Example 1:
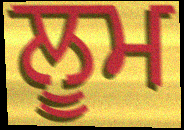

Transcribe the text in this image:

ਲੂਮ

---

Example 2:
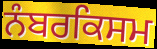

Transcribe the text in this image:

ਨੰਬਰਕਿਸਮ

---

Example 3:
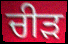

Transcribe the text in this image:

ਚੀੜ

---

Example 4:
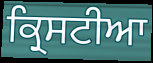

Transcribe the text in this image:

ਕ੍ਰਿਸਟੀਆ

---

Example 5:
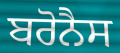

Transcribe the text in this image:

ਬਰੋਨੈਸ